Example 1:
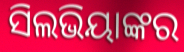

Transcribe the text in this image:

ସିଲଭିୟାଙ୍କର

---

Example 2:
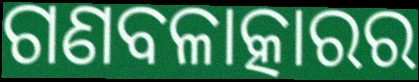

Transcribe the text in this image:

ଗଣବଳାତ୍କାରର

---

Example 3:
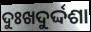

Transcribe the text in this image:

ଦୁଃଖଦୁର୍ଦ୍ଦଶା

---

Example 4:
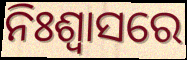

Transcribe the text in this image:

ନିଃଶ୍ଵାସରେ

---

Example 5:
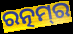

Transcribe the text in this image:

ରତ୍ନମ୍‌ର